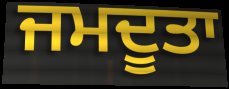
ਜਮਦੂਤਾ